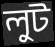
লুট